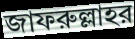
জাফরুল্লাহর